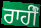
ਰਾਹੀਂੰ